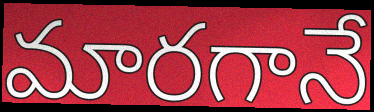
మారగానే